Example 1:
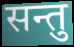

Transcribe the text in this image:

सन्‍तु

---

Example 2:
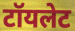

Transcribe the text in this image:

टॉयलेट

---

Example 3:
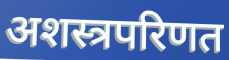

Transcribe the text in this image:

अशस्त्रपरिणत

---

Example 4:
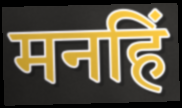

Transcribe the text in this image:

मनहिं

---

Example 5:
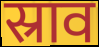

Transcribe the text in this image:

स्राव